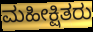
ಮಹೀಕ್ಷಿತರು